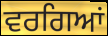
ਵਰਗਿਆਂ